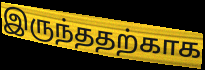
இருந்ததற்காக